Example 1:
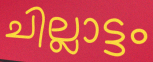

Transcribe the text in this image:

ചില്ലാട്ടം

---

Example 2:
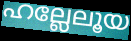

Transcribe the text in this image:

ഹല്ലേലൂയ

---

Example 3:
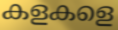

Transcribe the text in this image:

കളകളെ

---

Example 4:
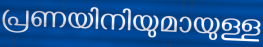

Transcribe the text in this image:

പ്രണയിനിയുമായുള്ള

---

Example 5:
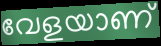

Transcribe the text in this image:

വേളയാണ്